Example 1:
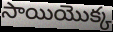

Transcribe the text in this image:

సాయియొక్క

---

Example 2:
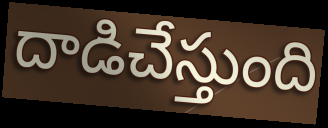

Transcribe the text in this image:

దాడిచేస్తుంది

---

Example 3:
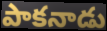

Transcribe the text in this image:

పాకనాడు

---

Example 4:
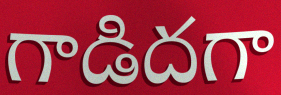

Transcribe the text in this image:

గాడిదగా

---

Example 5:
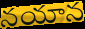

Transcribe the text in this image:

నయాన